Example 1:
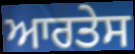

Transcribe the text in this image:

ਆਰਤੇਸ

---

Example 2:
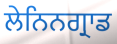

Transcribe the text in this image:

ਲੇਨਿਨਗ੍ਰਾਡ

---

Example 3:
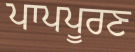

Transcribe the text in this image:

ਪਾਪਪੂਰਣ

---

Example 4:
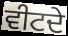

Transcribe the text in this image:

ਵੀਟਦੇ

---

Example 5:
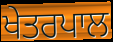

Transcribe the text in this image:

ਖੇਤਰਪਾਲ